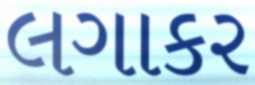
લગાકર